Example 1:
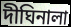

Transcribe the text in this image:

দীঘিনালা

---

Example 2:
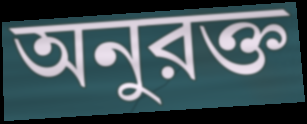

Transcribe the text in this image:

অনুরক্ত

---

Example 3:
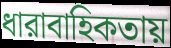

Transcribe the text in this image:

ধারাবাহিকতায়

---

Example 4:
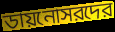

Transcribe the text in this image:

ডায়নোসরদের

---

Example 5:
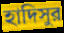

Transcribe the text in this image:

হাদিসুর